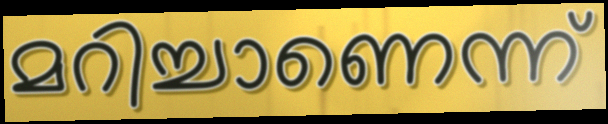
മറിച്ചാണെന്ന്